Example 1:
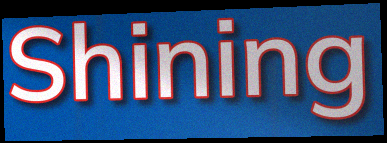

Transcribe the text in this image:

Shining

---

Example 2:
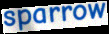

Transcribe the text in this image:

sparrow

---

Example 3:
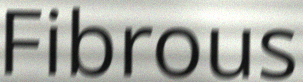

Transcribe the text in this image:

Fibrous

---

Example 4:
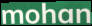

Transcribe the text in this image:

mohan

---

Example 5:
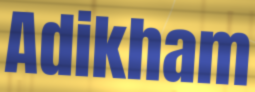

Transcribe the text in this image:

Adikham